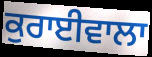
ਕੁਰਾਈਵਾਲਾ